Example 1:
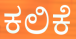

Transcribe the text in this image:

ಕಲಿಕೆ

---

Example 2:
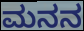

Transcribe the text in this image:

ಮನನ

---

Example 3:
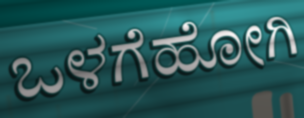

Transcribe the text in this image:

ಒಳಗೆಹೋಗಿ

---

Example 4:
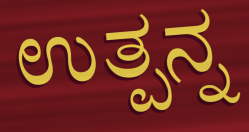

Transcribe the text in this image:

ಉತ್ಪನ್ನ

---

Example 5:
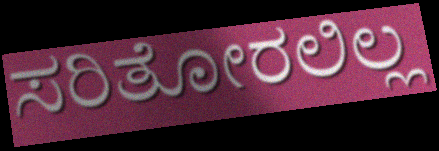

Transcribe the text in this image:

ಸರಿತೋರಲಿಲ್ಲ